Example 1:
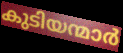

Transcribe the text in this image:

കുടിയന്മാർ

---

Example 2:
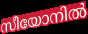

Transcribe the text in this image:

സീയോനിൽ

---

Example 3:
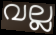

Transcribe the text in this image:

വല്ല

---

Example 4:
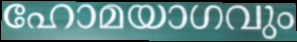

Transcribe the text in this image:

ഹോമയാഗവും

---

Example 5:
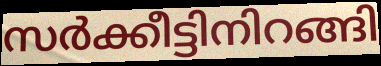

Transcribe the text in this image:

സർക്കീട്ടിനിറങ്ങി